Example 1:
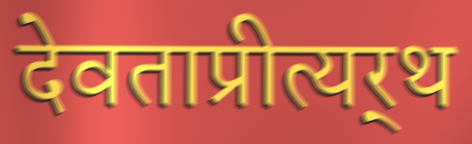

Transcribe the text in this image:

देवताप्रीत्यर्थ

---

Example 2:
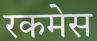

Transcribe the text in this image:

रकमेस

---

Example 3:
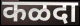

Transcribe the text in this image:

कळदा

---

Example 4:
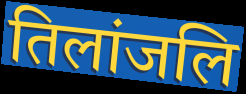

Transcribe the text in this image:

तिलांजलि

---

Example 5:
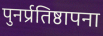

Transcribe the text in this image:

पुनर्प्रतिष्ठापना